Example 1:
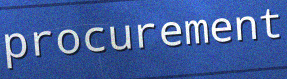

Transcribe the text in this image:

procurement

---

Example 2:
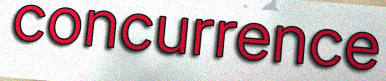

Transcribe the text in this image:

concurrence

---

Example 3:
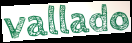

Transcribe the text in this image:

vallado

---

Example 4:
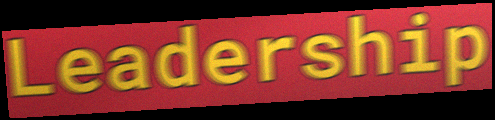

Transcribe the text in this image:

Leadership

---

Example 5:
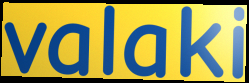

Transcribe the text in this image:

valaki